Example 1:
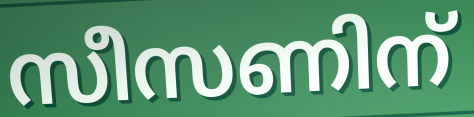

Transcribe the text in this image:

സീസണിന്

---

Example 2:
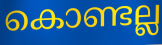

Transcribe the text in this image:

കൊണ്ടല്ല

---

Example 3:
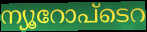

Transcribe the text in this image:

ന്യൂറോപ്ടെറ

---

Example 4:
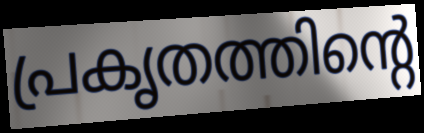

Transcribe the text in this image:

പ്രകൃതത്തിന്റെ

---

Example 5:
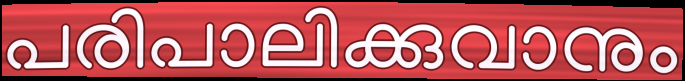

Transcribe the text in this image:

പരിപാലിക്കുവാനും